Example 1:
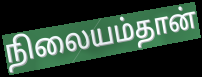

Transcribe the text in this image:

நிலையம்தான்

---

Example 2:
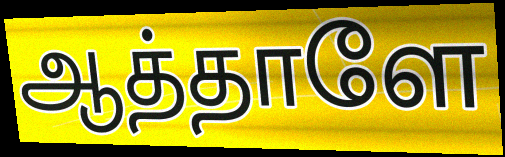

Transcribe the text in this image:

ஆத்தாளே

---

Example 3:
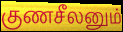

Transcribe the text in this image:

குணசீலனும்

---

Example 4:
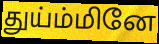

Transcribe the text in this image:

துய்ம்மினே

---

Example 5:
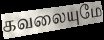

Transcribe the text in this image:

கவலையுமே